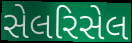
સેલરિસેલ